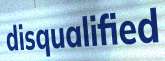
disqualified